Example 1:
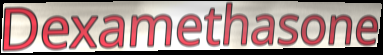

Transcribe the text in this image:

Dexamethasone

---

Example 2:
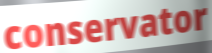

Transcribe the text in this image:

conservator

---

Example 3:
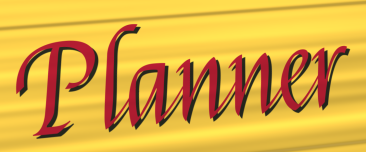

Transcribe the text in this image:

Planner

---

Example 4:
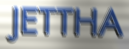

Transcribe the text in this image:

JETTHA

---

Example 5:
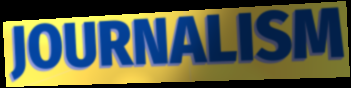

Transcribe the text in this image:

JOURNALISM